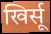
खिर्सू